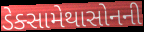
ડેક્સામેથાસોનની